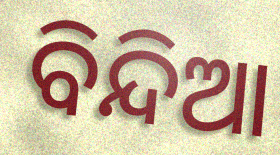
ବିନ୍ଦିଆ